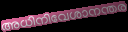
അധിനിവേശാനന്തര